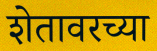
शेतावरच्या